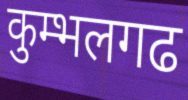
कुम्भलगढ